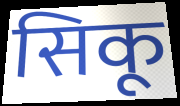
सिकू